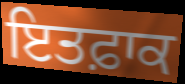
ਇਤਫ਼ਾਕ